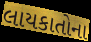
લાયકાતોના